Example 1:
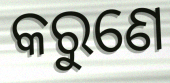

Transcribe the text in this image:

କରୁଣେ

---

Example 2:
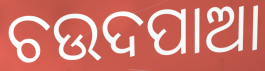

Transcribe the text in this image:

ଚଉଦପାଆ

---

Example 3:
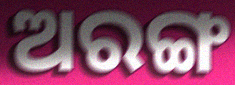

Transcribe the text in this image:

ଅରଙ୍ଗ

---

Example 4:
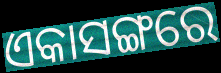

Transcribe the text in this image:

ଏକାସଙ୍ଗରେ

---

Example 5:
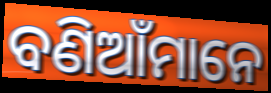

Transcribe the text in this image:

ବଣିଆଁମାନେ